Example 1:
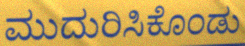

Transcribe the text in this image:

ಮುದುರಿಸಿಕೊಂಡು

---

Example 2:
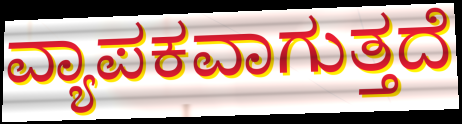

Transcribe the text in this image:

ವ್ಯಾಪಕವಾಗುತ್ತದೆ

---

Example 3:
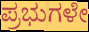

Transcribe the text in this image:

ಪ್ರಭುಗಳೇ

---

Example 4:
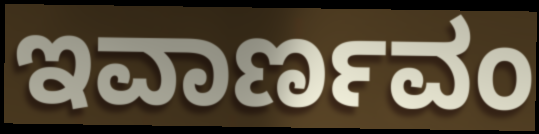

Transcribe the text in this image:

ಇವಾರ್ಣವಂ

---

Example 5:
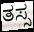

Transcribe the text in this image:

ತಸ್ಸ